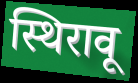
स्थिरावू